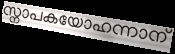
സ്നാപകയോഹന്നാന്